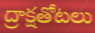
ద్రాక్షతోటలు